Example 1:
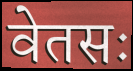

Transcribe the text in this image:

वेतसः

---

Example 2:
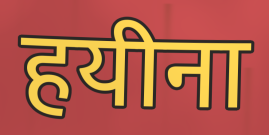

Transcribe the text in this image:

हयीना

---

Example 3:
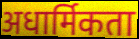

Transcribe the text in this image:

अधार्मिकता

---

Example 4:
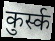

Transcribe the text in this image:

कुर्स्क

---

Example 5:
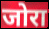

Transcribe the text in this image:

जोरा